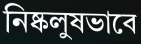
নিষ্কলুষভাবে